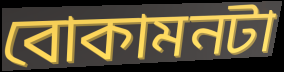
বোকামনটা